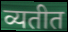
व्यतीत